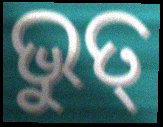
ଭୁତ୍